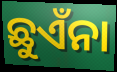
ଛୁଏଁନା